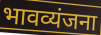
भावव्यंजना